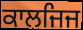
ਕਾਲਜਿਜ